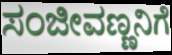
ಸಂಜೀವಣ್ಣನಿಗೆ